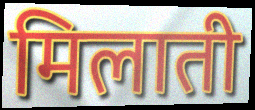
मिलाती